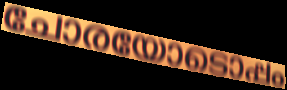
ചോരയോടൊപ്പം